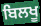
ਬਿਲਖੂ